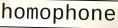
homophone